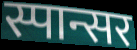
स्पान्सर